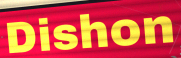
Dishon